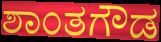
ಶಾಂತಗೌಡ